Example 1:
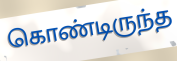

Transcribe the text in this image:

கொண்டிருந்த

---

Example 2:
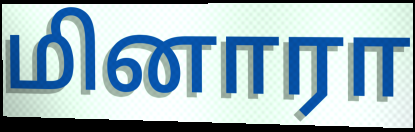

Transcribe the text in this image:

மினாரா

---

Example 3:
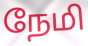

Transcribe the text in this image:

நேமி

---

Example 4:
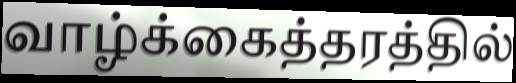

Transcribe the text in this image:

வாழ்க்கைத்தரத்தில்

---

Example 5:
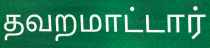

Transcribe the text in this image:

தவறமாட்டார்